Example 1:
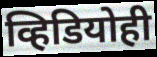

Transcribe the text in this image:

व्हिडियोही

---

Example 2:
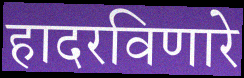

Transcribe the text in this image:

हादरविणारे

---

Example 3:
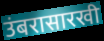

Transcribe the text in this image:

उंबरासारखी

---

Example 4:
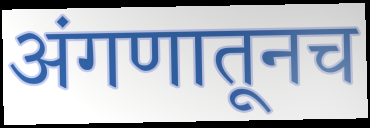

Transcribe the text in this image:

अंगणातूनच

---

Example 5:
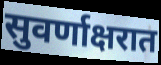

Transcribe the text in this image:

सुवर्णाक्षरात